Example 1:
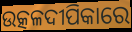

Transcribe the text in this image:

ଉତ୍କଳଦୀପିକାରେ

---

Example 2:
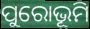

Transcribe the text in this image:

ପୁରୋଭୂମି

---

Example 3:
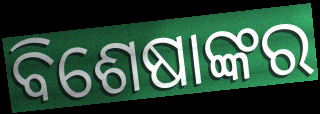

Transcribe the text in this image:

ବିଶେଷାଙ୍କର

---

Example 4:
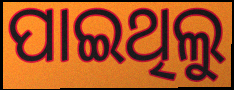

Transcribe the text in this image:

ପାଇଥିଲୁ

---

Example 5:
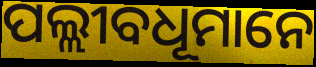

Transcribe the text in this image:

ପଲ୍ଲୀବଧୂମାନେ